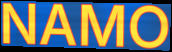
NAMO